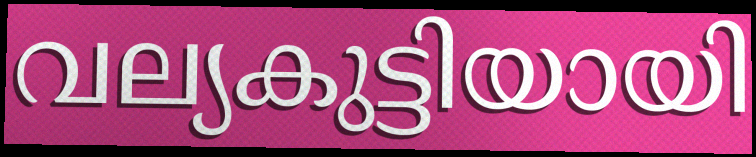
വല്യകുട്ടിയായി